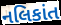
નલિકાંત